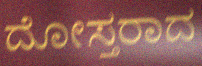
ದೋಸ್ತರಾದ